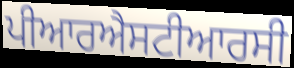
ਪੀਆਰਐਸਟੀਆਰਸੀ